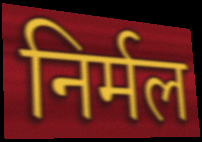
निर्मल